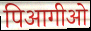
पिआगीओ